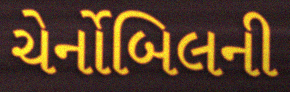
ચેર્નોબિલની